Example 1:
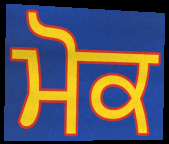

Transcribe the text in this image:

ਮੋਕ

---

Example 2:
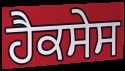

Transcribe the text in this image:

ਹੈਕਸੇਸ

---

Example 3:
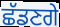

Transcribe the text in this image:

ਛੱਡਣਗੇ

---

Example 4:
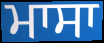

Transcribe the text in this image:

ਮਾਸਾ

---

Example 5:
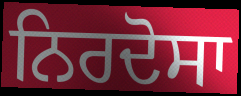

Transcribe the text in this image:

ਨਿਰਦੋਸਾ